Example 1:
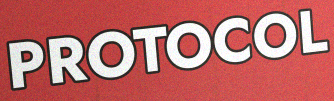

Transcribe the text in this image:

PROTOCOL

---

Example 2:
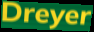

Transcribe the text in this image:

Dreyer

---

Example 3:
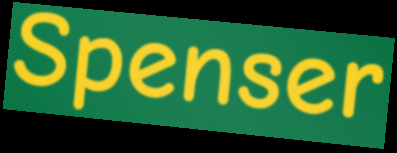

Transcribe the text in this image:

Spenser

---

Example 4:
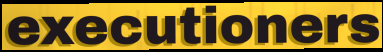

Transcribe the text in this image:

executioners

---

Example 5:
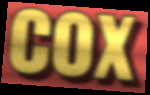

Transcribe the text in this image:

cox